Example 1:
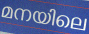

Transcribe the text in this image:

മനയിലെ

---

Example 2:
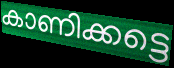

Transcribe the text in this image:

കാണിക്കട്ടെ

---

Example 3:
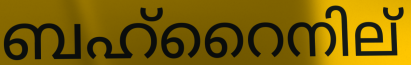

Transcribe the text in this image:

ബഹ്റൈനില്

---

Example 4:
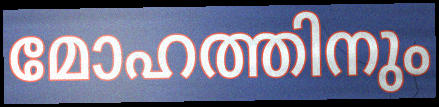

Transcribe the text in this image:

മോഹത്തിനും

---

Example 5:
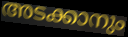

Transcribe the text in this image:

അടക്കാനും